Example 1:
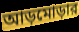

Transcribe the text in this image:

আড়মোড়ার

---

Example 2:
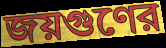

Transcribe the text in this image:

জয়গুণের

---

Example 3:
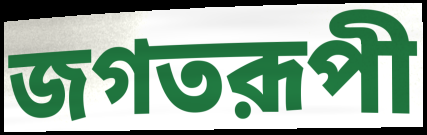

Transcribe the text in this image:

জগতরূপী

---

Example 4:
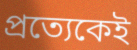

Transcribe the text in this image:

প্রত্যেকেই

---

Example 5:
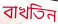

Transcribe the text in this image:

বাখতিন